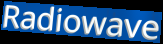
Radiowave